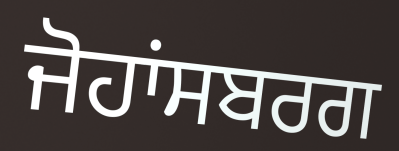
ਜੋਹਾਂਸਬਰਗ